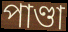
পাণ্ডা